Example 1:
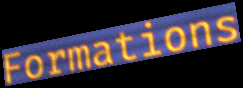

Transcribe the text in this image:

Formations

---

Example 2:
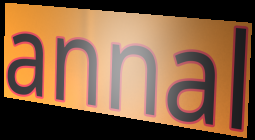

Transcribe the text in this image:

annal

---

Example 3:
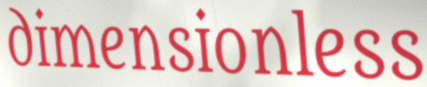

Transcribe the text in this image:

dimensionless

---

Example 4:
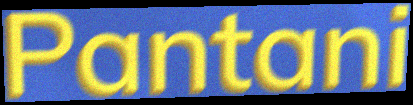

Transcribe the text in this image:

Pantani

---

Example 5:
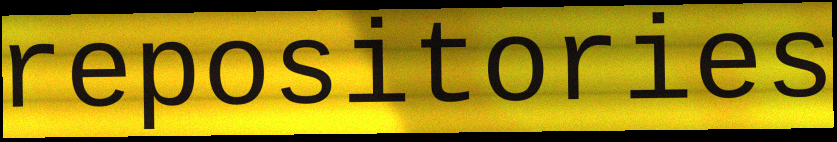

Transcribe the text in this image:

repositories